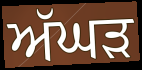
ਅੱਘੜ